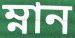
ম্নান